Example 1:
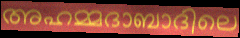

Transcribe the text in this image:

അഹമ്മദാബാദിലെ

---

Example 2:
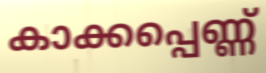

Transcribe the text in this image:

കാക്കപ്പെണ്ണ്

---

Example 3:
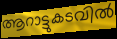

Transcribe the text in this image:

ആറാട്ടുകടവിൽ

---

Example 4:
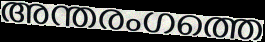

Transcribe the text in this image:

അന്തരംഗത്തെ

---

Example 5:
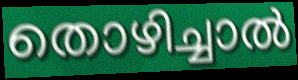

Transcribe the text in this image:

തൊഴിച്ചാൽ